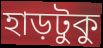
হাড়টুকু